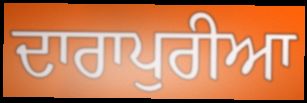
ਦਾਰਾਪੁਰੀਆ